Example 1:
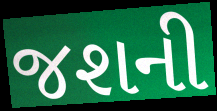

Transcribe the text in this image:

જશની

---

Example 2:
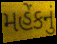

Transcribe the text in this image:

મહેંકનું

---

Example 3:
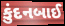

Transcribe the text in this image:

કુંદનબાઈ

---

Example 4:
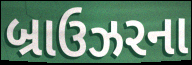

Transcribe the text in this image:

બ્રાઉઝરના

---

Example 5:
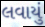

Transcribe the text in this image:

લવાયું